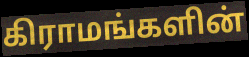
கிராமங்களின்